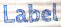
Label